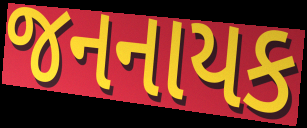
જનનાયક